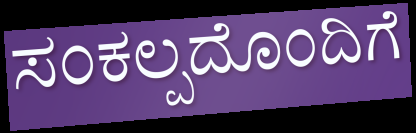
ಸಂಕಲ್ಪದೊಂದಿಗೆ